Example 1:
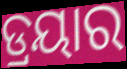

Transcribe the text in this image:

ଡ୍ରୟାର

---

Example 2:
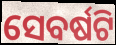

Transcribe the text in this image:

ସେବର୍ଷଟି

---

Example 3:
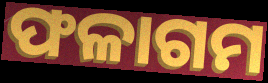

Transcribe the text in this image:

ଫଳାଗମ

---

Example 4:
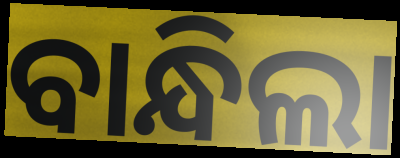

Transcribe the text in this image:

ବାନ୍ଧିଲା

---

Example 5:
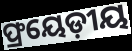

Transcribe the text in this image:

ଫ୍ରୟେଡ଼ୀୟ